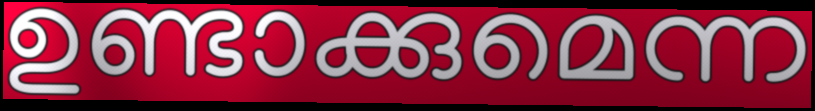
ഉണ്ടാക്കുമെന്ന